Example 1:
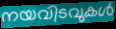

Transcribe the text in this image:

നയവിടവുകൾ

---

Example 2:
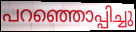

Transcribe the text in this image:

പറഞ്ഞൊപ്പിച്ചു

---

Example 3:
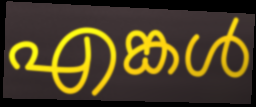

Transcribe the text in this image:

എങ്കൾ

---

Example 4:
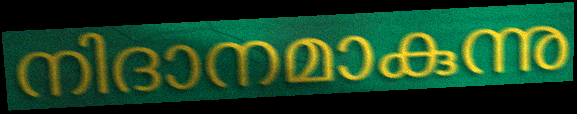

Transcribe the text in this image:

നിദാനമാകുന്നു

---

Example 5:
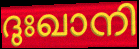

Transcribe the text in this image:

ദുഃഖാനി